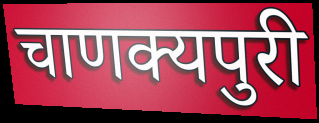
चाणक्यपुरी